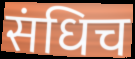
संधिच